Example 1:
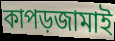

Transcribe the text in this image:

কাপড়জামাই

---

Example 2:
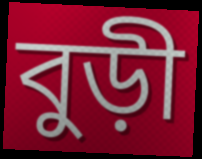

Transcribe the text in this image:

বুড়ী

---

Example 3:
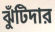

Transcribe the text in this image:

ঝুঁটিদার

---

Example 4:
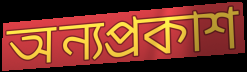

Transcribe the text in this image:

অন্যপ্রকাশ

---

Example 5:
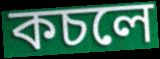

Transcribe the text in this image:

কচলে